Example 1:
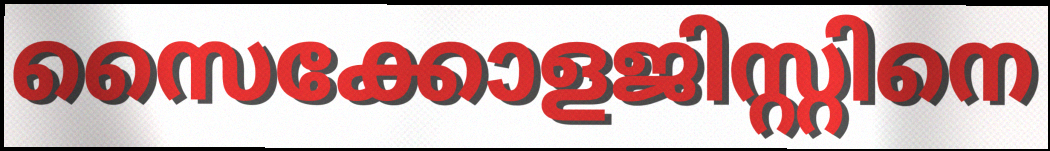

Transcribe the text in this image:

സൈക്കോളജിസ്റ്റിനെ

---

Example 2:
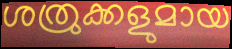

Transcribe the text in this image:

ശത്രുക്കളുമായ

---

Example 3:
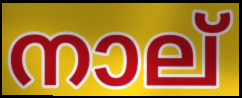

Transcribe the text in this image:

നാല്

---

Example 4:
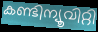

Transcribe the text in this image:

കണ്ടിന്യൂവിറ്റി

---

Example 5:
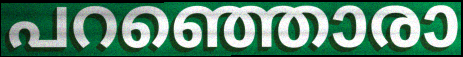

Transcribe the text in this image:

പറഞ്ഞൊരാ